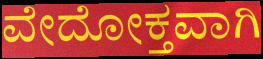
ವೇದೋಕ್ತವಾಗಿ